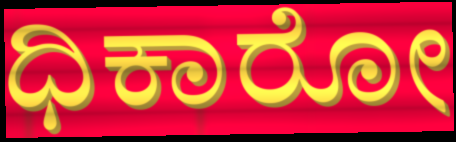
ಧಿಕಾರೋ